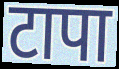
टापा